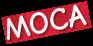
MOCA